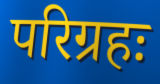
परिग्रहः